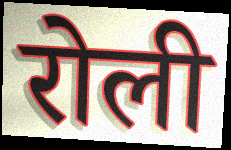
रोली